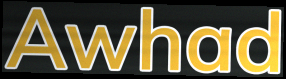
Awhad